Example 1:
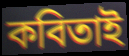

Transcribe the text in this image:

কবিতাই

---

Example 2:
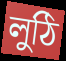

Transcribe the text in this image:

লুঠি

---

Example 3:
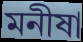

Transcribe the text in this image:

মনীষা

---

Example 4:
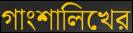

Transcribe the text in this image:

গাংশালিখের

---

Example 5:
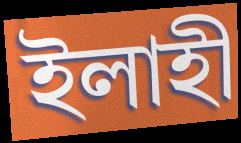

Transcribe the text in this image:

ইলাহী